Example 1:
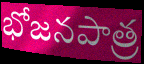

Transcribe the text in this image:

భోజనపాత్ర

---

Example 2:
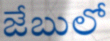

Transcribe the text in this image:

జేబులో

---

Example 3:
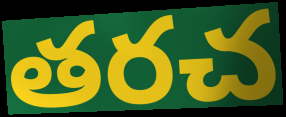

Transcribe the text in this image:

తరచ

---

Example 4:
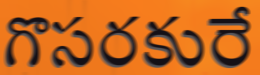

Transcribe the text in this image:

గొసరకురే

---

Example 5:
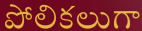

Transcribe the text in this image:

పోలికలుగా